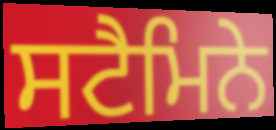
ਸਟੈਮਿਨੇ